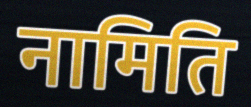
नामिति